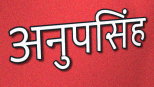
अनुपसिंह